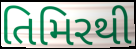
તિમિરથી